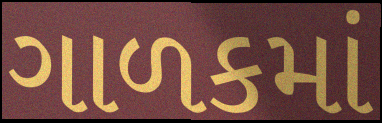
ગાળકમાં